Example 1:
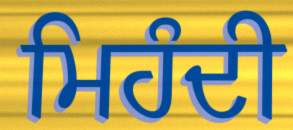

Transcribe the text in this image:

ਮਿਹੰਦੀ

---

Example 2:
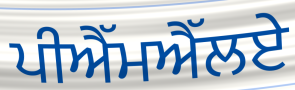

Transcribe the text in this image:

ਪੀਐੱਮਐੱਲਏ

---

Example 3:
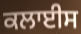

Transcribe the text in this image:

ਕਲਾਈਸ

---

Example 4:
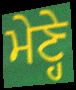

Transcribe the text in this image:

ਮੇਣ੍ਹੇ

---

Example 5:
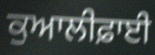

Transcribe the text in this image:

ਕੁਆਲੀਫ਼ਾਈ